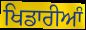
ਖਿਡਾਰੀਆੰ